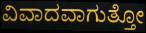
ವಿವಾದವಾಗುತ್ತೋ